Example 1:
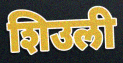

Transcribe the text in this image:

शिउली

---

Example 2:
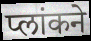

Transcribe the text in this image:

प्लांकने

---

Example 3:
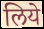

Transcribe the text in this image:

लिये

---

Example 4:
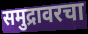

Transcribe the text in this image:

समुद्रावरचा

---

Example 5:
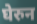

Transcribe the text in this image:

घेरुन